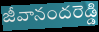
జీవానందరెడ్డి